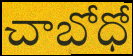
చాబోధో